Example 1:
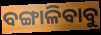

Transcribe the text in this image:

ବଙ୍ଗାଳିବାବୁ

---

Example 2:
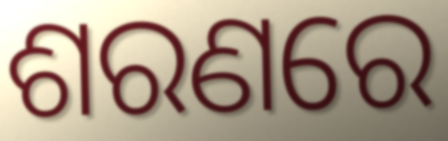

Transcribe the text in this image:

ଶରଣରେ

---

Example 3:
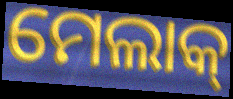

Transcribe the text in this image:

ମେଲାକ୍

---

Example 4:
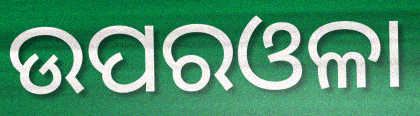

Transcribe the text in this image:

ଉପରଓଳା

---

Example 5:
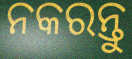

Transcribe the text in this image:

ନକରନ୍ତୁ